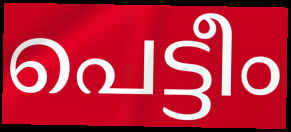
പെട്ടീം